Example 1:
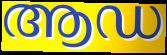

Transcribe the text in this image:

ആഡ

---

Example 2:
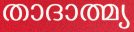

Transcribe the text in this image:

താദാത്മ്യ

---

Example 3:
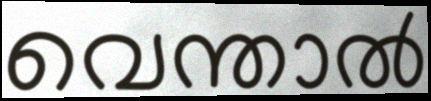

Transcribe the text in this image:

വെന്താൽ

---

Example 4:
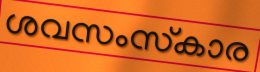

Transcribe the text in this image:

ശവസംസ്‌കാര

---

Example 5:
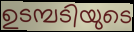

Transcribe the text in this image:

ഉടമ്പടിയുടെ